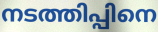
നടത്തിപ്പിനെ